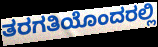
ತರಗತಿಯೊಂದರಲ್ಲಿ